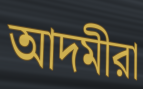
আদমীরা